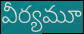
వీర్యమూ